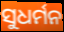
ସୁଧର୍ମନ